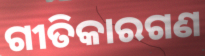
ଗୀତିକାରଗଣ